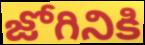
జోగినికి